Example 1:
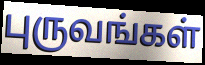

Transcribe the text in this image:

புருவங்கள்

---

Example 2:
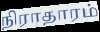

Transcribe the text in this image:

நிராதாரம்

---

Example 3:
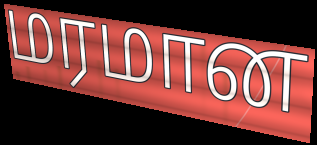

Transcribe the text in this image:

மரமான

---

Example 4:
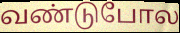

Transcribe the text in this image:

வண்டுபோல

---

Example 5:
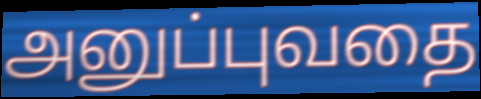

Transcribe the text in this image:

அனுப்புவதை